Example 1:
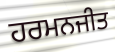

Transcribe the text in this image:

ਹਰਮਨਜੀਤ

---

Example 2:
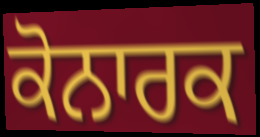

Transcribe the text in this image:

ਕੋਨਾਰਕ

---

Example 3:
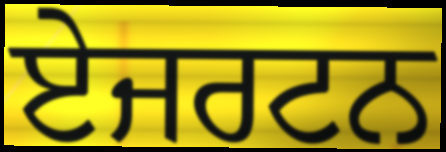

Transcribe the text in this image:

ਏਜਰਟਨ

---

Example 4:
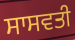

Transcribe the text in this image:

ਸਾਸਵਤੀ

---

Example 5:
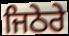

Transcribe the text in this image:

ਜਿਠੇਰੇ